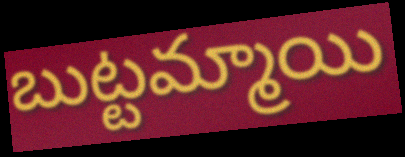
బుట్టమ్మాయి